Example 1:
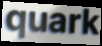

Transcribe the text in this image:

quark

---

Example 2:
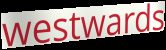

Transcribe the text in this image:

westwards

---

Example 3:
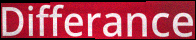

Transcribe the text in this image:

Differance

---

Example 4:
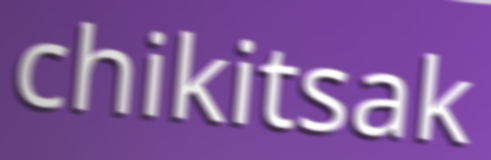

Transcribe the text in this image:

chikitsak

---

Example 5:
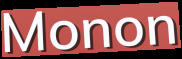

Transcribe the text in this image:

Monon